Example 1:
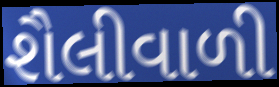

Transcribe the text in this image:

શૈલીવાળી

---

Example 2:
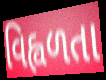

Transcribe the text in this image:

વિહ્વળતા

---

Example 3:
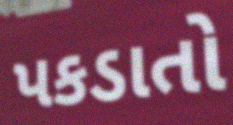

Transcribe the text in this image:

પકડાતો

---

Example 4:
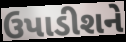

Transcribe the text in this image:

ઉપાડીશને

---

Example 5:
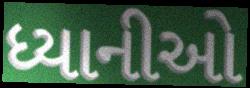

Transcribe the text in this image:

ધ્યાનીઓ